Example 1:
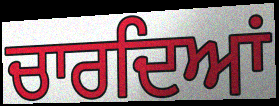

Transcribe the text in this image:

ਚਾਰਦਿਆਂ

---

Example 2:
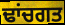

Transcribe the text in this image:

ਢਾਂਚਗਤ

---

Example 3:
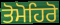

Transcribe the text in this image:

ਤੋਮੋਹਿਰੋ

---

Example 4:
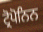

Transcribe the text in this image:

ਟ੍ਰੋਪੋਨਿਨ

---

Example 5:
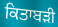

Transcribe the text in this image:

ਕਿਤਾਬੜੀ